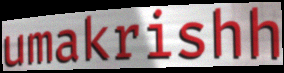
umakrishh